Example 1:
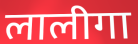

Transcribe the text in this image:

लालीगा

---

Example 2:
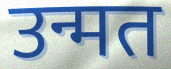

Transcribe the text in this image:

उन्मत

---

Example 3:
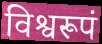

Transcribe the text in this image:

विश्वरूपं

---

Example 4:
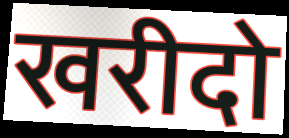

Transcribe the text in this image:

खरीदो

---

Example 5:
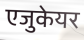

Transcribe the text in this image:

एजुकेयर